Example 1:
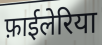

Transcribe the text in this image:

फ़ाईलेरिया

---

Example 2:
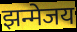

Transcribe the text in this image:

झन्मेजय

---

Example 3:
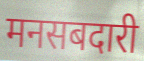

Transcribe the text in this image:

मनसबदारी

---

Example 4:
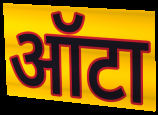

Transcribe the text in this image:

ऑटा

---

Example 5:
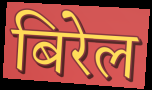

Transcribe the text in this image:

बिरेल